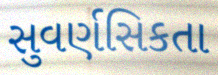
સુવર્ણસિકતા